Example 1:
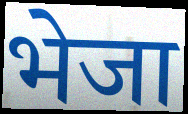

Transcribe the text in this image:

भेजा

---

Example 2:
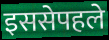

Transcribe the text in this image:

इससेपहले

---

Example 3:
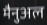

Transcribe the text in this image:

मैनुअल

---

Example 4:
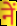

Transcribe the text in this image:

नें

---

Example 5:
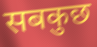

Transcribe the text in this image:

सबकुछ